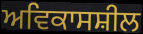
ਅਵਿਕਾਸਸ਼ੀਲ